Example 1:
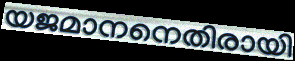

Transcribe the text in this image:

യജമാനനെതിരായി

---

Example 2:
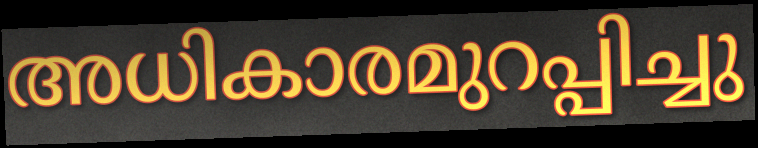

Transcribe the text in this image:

അധികാരമുറപ്പിച്ചു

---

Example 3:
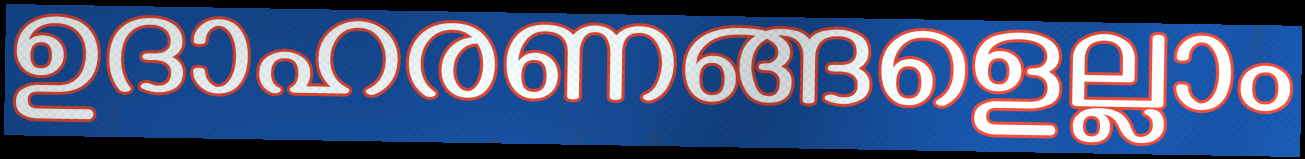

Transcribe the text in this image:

ഉദാഹരണങ്ങളെല്ലാം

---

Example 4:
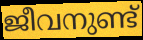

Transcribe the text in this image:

ജീവനുണ്ട്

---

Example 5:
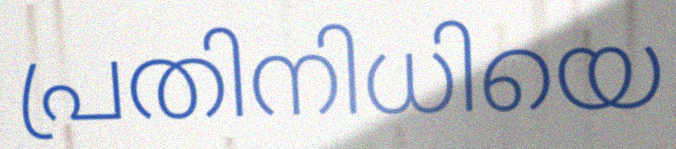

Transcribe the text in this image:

പ്രതിനിധിയെ